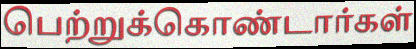
பெற்றுக்கொண்டார்கள்